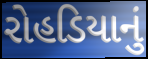
રોહડિયાનું